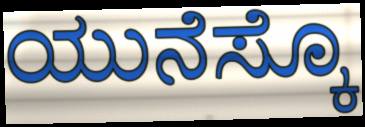
ಯುನೆಸ್ಕೊ